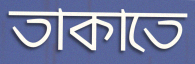
তাকাতে